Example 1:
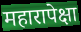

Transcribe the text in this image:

महारापेक्षा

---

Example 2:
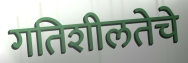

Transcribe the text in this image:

गतिशीलतेचे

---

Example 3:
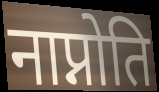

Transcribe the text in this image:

नाप्नोति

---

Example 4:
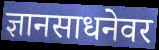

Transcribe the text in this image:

ज्ञानसाधनेवर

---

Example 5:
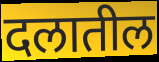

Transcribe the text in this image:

दलातील